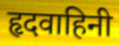
हृदवाहिनी